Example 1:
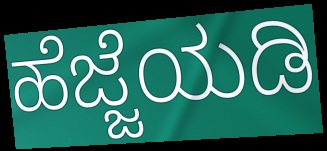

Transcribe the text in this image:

ಹೆಜ್ಜೆಯಡಿ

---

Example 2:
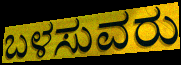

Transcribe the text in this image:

ಬಳಸುವರು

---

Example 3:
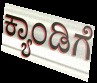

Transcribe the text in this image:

ಕ್ಯಾಂಡಿಗೆ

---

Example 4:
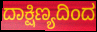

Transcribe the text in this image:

ದಾಕ್ಷಿಣ್ಯದಿಂದ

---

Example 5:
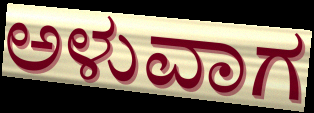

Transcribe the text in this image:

ಅಳುವಾಗ